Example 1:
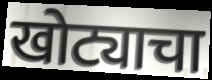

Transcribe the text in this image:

खोट्याचा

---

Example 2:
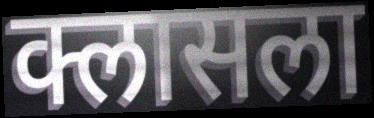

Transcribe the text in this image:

क्लासला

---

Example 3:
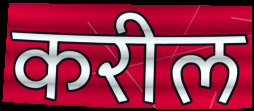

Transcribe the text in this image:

करील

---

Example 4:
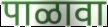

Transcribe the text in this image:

पाळावा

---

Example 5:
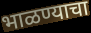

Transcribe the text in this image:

भाळण्याचा